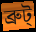
ব্রুট্